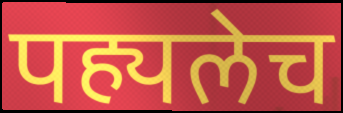
पह्यलेच